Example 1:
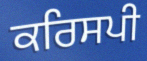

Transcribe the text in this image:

ਕਰਿਸਪੀ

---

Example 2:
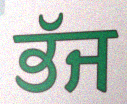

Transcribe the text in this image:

ਭੱਜ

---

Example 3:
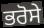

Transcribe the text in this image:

ਭਰੋਸੇ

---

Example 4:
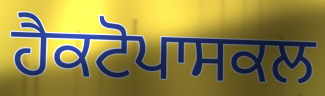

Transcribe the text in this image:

ਹੈਕਟੋਪਾਸਕਲ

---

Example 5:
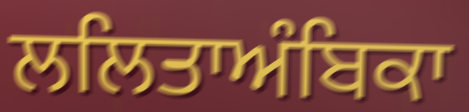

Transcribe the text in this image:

ਲਲਿਤਾਅੰਬਿਕਾ